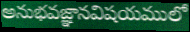
అనుభవజ్ఞానవిషయములో